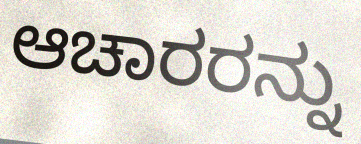
ಆಚಾರರನ್ನು